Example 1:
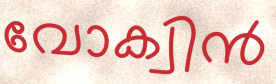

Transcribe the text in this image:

വോക്വിൻ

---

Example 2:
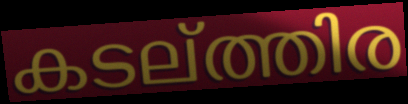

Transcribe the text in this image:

കടല്ത്തിര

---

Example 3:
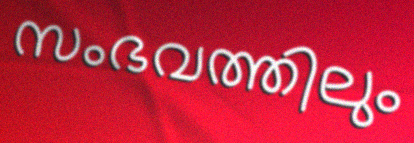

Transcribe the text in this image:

സംഭവത്തിലും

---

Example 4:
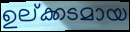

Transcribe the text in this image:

ഉല്ക്കടമായ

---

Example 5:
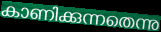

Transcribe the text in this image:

കാണിക്കുന്നതെന്നു